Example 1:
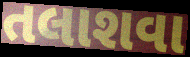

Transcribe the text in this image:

તલાશવા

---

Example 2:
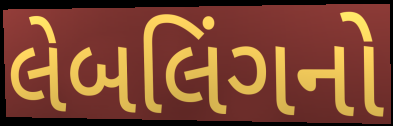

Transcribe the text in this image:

લેબલિંગનો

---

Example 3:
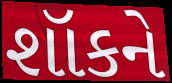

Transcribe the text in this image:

શૉકને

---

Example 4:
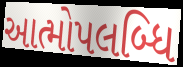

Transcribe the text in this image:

આત્મોપલબ્ધિ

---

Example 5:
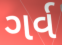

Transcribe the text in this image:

ગર્વ